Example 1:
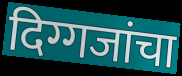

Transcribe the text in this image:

दिग्गजांचा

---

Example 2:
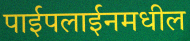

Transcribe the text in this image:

पाईपलाईनमधील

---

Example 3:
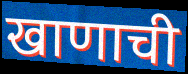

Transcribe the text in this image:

खाणाची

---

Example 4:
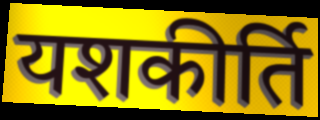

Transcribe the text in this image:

यशकीर्ति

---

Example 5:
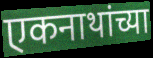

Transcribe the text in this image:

एकनाथांच्या